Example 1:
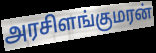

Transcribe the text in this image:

அரசிளங்குமரன்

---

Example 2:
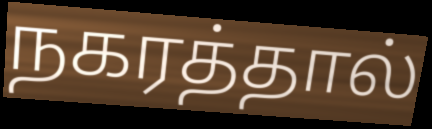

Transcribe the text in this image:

நகரத்தால்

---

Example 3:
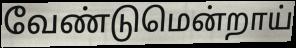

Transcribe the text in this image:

வேண்டுமென்றாய்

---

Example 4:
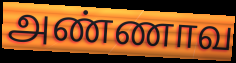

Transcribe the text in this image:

அண்ணாவ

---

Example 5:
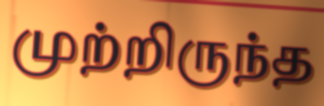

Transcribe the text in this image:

முற்றிருந்த